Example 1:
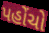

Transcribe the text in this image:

પહોંચો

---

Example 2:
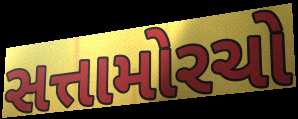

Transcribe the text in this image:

સત્તામોરચો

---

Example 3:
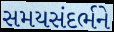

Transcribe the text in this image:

સમયસંદર્ભને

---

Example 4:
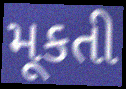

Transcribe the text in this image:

મૂકતી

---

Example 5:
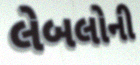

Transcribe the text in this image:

લેબલોની